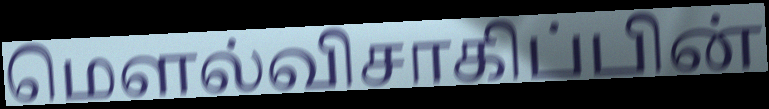
மௌல்விசாகிப்பின்